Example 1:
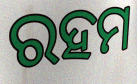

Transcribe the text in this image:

ରହମ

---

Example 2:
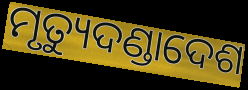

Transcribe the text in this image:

ମୃତ୍ୟୁଦଣ୍ଡାଦେଶ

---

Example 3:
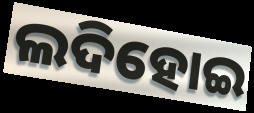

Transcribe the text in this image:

ଲଦିହୋଇ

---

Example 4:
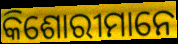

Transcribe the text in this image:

କିଶୋରୀମାନେ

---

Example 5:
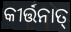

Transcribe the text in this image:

କୀର୍ତ୍ତନାତ୍